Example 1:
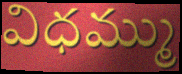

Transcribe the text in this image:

విధమ్ము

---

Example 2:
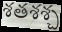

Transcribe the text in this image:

శతశశ్చ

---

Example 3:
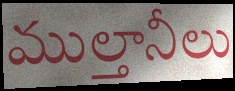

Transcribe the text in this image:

ముల్తానీలు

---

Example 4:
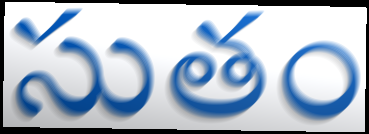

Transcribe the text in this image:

సుతం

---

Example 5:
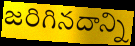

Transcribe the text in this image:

జరిగినదాన్ని